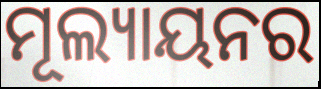
ମୂଲ୍ୟାୟନର